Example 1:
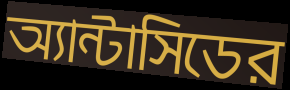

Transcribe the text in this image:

অ্যান্টাসিডের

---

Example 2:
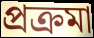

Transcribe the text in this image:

প্রক্রমা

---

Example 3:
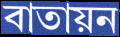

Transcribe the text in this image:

বাতায়ন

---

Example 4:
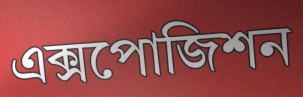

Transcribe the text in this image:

এক্সপোজিশন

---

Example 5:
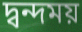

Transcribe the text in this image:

দ্বন্দময়